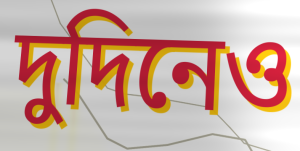
দুদিনেও